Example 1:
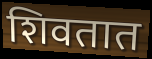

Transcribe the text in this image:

शिवतात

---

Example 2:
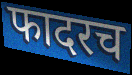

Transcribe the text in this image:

फादरच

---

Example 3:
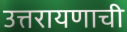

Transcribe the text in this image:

उत्तरायणाची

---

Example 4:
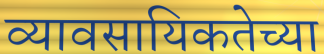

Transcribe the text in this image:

व्यावसायिकतेच्या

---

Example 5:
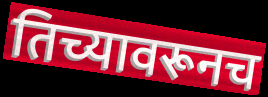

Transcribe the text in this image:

तिच्यावरूनच